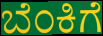
ಬೆಂಕಿಗೆ